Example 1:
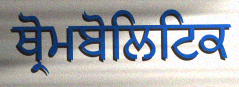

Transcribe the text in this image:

ਥ੍ਰੋਮਬੋਲਿਟਿਕ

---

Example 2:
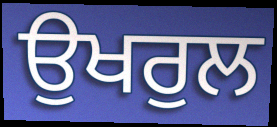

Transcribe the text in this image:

ਉਖਰੁਲ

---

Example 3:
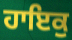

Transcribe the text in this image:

ਹਾਇਕੁ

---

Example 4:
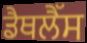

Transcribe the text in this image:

ਡੈਥਲੈੱਸ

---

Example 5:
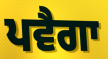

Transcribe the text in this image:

ਪਵੈਗਾ